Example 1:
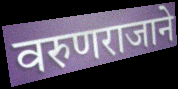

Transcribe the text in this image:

वरुणराजाने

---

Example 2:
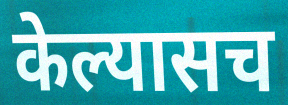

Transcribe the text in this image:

केल्यासच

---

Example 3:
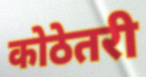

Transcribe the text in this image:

कोठेतरी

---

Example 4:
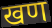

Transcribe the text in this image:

खण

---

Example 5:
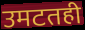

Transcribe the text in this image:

उमटतही